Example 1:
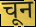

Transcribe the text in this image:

चून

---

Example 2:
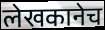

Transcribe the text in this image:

लेखकानेच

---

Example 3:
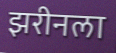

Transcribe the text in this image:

झरीनला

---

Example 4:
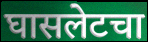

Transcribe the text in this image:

घासलेटचा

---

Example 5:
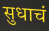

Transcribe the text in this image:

सुधाचं